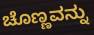
ಚೊಣ್ಣವನ್ನು